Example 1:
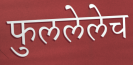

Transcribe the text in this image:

फुललेलेच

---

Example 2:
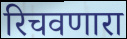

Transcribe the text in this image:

रिचवणारा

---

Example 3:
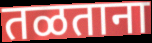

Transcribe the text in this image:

तळताना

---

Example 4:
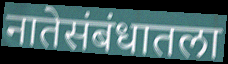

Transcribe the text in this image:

नातेसंबंधातला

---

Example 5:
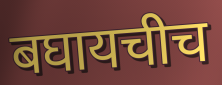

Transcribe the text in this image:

बघायचीच